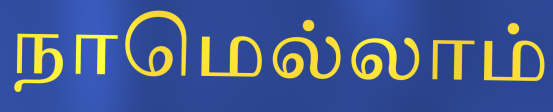
நாமெல்லாம்